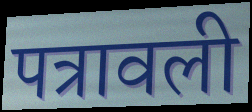
पत्रावली